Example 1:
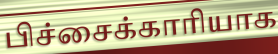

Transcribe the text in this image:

பிச்சைக்காரியாக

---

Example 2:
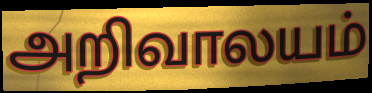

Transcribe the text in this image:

அறிவாலயம்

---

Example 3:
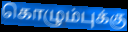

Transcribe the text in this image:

கொழும்புக்கு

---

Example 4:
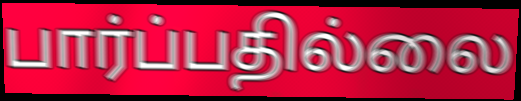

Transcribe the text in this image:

பார்ப்பதில்லை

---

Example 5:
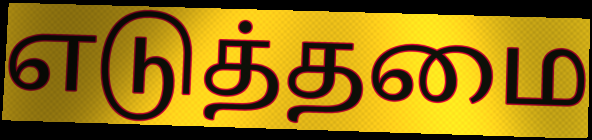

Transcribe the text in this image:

எடுத்தமை